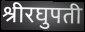
श्रीरघुपती